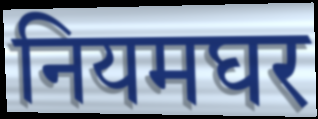
नियमघर